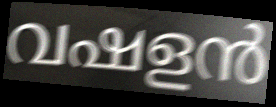
വഷളൻ